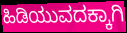
ಹಿಡಿಯುವದಕ್ಕಾಗಿ